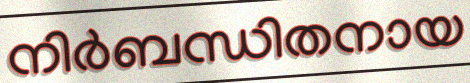
നിർബന്ധിതനായ